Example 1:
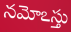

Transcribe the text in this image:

నమోఽస్తు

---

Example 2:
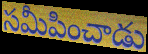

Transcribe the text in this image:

సమీపించాడు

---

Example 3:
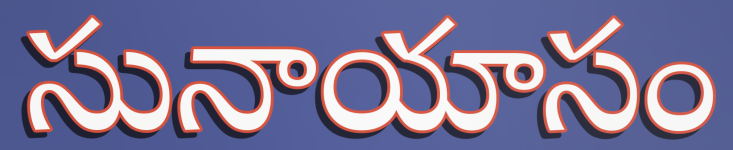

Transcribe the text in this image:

సునాయాసం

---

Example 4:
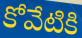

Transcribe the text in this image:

కోవేటికి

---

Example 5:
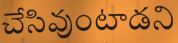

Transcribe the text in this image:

చేసివుంటాడని